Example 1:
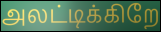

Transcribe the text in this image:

அலட்டிக்கிறே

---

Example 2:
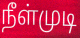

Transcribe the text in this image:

நீள்முடி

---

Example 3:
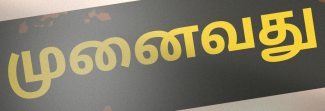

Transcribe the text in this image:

முனைவது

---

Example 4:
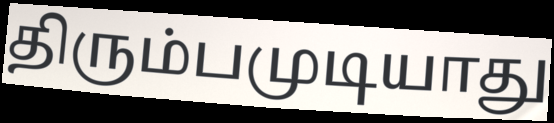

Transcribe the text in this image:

திரும்பமுடியாது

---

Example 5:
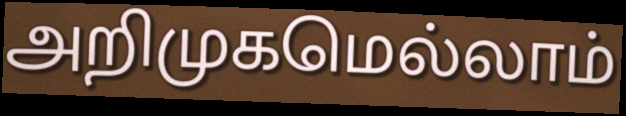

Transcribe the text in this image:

அறிமுகமெல்லாம்